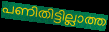
പണിതിട്ടില്ലാത്ത